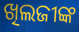
ଖିଲଜୀଙ୍କ